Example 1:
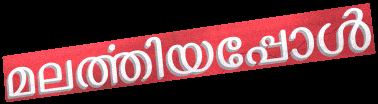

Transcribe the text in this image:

മലൎത്തിയപ്പോൾ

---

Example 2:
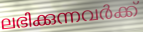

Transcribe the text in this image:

ലഭിക്കുന്നവർക്ക്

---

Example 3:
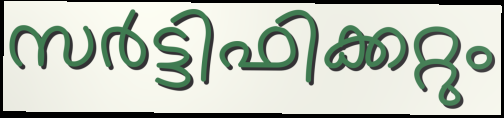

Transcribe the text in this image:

സർട്ടിഫിക്കറ്റും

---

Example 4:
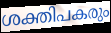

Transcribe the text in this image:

ശക്തിപകരും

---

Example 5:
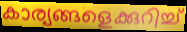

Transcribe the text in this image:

കാര്യങ്ങളെക്കുറിച്ച്